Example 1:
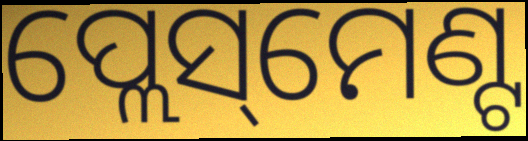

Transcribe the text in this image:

ପ୍ଲେସ୍‌ମେଣ୍ଟ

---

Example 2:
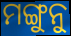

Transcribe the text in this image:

ମଙ୍ଗୁନୁ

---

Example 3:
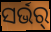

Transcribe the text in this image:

ସର୍ଭର୍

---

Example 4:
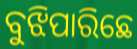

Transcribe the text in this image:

ବୁଝିପାରିଛେ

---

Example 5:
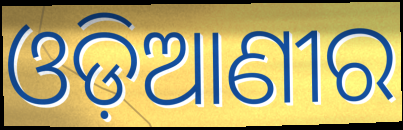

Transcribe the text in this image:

ଓଡ଼ିଆଣୀର